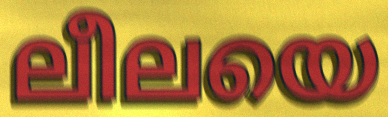
ലീലയെ